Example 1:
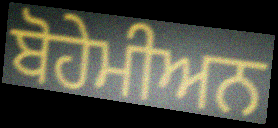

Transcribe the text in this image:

ਬੋਹੇਮੀਅਨ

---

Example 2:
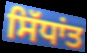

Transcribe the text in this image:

ਸਿੱਧਾਂਤ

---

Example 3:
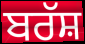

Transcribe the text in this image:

ਬਰੱਸ਼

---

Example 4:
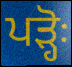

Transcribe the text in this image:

ਪੜ੍ਹੋਃ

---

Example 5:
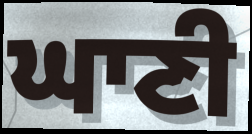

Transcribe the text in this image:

ਘਾਣੀ